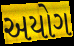
અયોગ